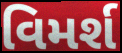
વિમર્શ